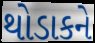
થોડાકને